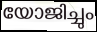
യോജിച്ചും